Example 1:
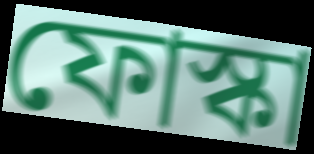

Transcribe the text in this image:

ফোস্কা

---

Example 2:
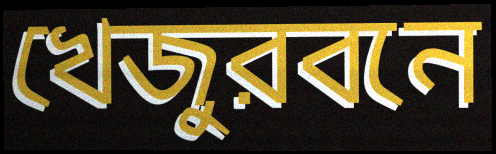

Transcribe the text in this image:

খেজুরবনে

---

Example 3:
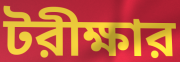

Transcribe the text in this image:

টরীক্ষার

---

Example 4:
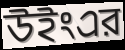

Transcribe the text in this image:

উইংএর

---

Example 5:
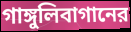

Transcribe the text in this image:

গাঙ্গুলিবাগানের